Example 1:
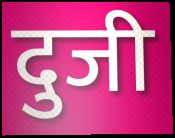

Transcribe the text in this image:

दुजी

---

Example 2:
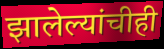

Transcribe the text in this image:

झालेल्यांचीही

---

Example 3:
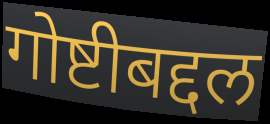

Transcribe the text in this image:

गोष्टीबद्दल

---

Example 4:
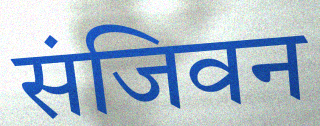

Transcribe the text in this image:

संजिवन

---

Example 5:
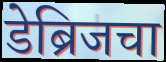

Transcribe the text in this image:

डेब्रिजचा